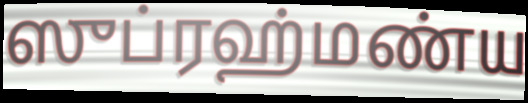
ஸுப்ரஹ்மண்ய